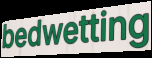
bedwetting